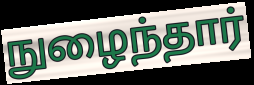
நுழைந்தார்